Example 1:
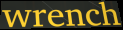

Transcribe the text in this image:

wrench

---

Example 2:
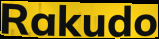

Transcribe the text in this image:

Rakudo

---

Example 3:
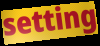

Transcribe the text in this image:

setting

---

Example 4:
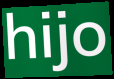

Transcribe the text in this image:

hijo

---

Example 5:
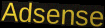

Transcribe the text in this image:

Adsense